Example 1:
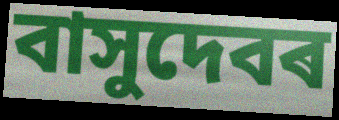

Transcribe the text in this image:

বাসুদেবৰ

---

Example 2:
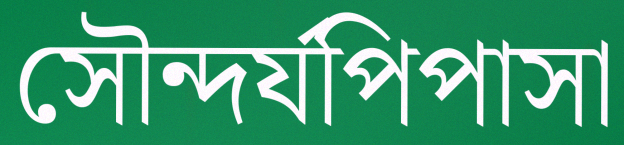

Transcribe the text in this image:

সৌন্দৰ্যপিপাসা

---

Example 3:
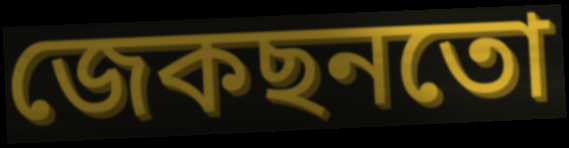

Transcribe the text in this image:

জেকছনতো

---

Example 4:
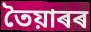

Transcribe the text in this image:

তৈয়াৰৰ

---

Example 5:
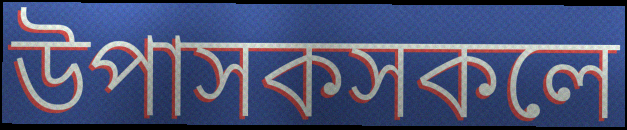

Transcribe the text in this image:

উপাসকসকলে